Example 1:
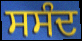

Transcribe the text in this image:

ਸਸੰਦ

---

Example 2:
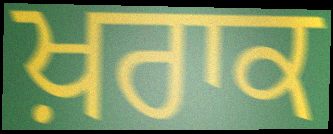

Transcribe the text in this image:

ਖ਼ਰਾਕ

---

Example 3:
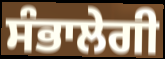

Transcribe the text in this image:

ਸੰਭਾਲੇਗੀ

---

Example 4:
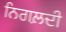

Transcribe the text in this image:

ਨਿਗਲ਼ਦੀ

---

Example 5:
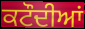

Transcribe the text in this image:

ਕਟੌਦੀਆਂ